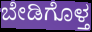
ಬೇಡಿಗೊಳ್ತ